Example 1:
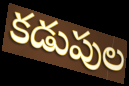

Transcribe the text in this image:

కడుపుల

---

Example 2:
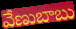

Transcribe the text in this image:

వేణుబాబు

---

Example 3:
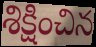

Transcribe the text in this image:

శిక్షించిన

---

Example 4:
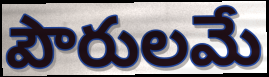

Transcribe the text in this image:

పౌరులమే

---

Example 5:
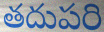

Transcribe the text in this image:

తదుపరి